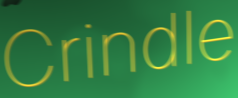
Crindle